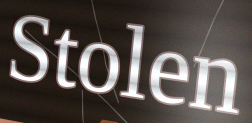
Stolen